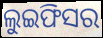
ଲୁଇଫିସର